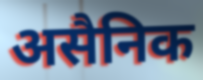
असैनिक